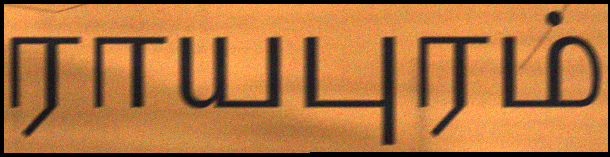
ராயபுரம்